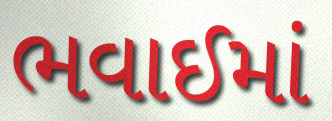
ભવાઈમાં